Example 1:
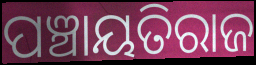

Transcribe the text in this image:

ପଞ୍ଚାୟତିରାଜ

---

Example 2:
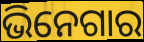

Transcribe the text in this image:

ଭିନେଗାର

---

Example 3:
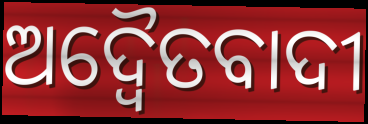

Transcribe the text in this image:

ଅଦ୍ୱୈତବାଦୀ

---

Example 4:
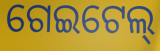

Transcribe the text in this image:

ଗେଇଟେଲ୍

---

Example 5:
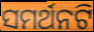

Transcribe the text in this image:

ସମର୍ଥନଟି